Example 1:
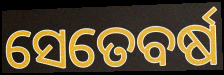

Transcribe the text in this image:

ସେତେବର୍ଷ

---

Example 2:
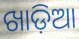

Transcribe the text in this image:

ଖାଡ଼ିଆ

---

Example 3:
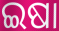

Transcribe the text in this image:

ଇଷା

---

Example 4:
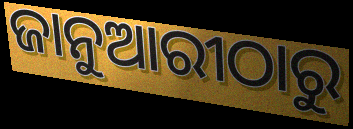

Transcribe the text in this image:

ଜାନୁଆରୀଠାରୁ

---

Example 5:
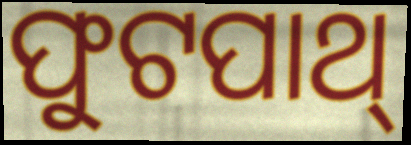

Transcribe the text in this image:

ଫୁଟପାଥ୍